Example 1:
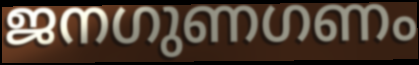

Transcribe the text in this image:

ജനഗുണഗണം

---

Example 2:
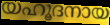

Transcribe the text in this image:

യഹൂദനായ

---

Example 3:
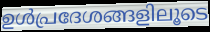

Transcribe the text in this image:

ഉൾപ്രദേശങ്ങളിലൂടെ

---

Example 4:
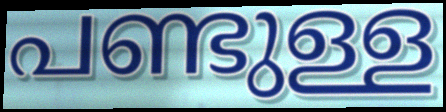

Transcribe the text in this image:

പണ്ടുള്ള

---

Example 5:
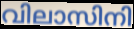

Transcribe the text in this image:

വിലാസിനി